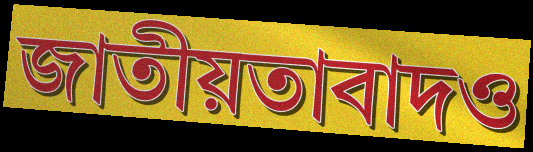
জাতীয়তাবাদও